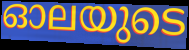
ഓലയുടെ